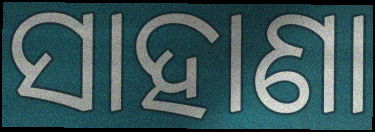
ସାହାଣା